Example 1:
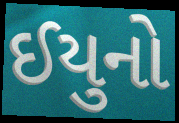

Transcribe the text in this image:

ઈયુનો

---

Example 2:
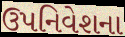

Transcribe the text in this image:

ઉપનિવેશના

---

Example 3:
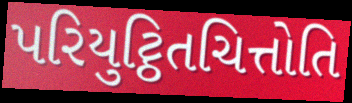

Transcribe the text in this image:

પરિયુટ્ઠિતચિત્તોતિ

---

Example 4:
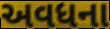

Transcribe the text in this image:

અવધના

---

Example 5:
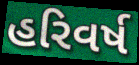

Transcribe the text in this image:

હરિવર્ષ